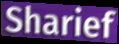
Sharief